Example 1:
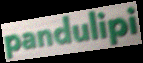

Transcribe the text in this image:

pandulipi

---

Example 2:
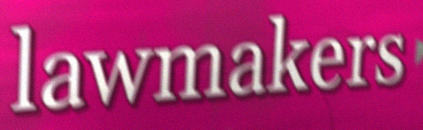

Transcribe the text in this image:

lawmakers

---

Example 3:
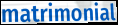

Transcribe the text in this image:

matrimonial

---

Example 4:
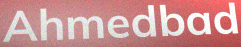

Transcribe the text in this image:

Ahmedbad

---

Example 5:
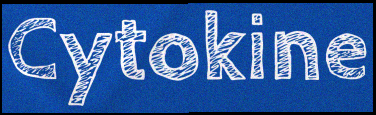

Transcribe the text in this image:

Cytokine